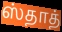
ஸ்தாத்